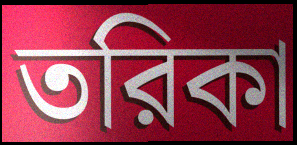
তরিকা